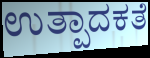
ಉತ್ಪಾದಕತೆ